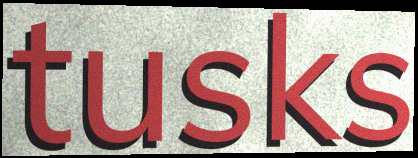
tusks